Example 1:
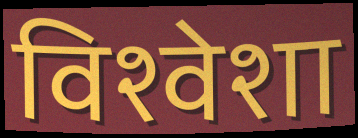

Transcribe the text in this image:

विश्वेशा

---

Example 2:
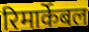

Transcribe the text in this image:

रिमार्केबल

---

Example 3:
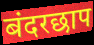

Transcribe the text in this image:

बंदरछाप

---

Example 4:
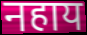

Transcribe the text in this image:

नहाय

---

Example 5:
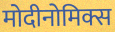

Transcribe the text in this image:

मोदीनोमिक्स